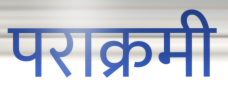
पराक्रमी